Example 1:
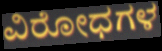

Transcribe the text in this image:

ವಿರೋಧಗಳ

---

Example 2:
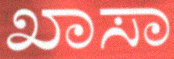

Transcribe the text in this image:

ಖಾಸಾ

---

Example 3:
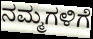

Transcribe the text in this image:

ನಮ್ಮಗಳಿಗೆ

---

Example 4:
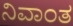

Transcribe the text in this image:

ನಿವಾಂತ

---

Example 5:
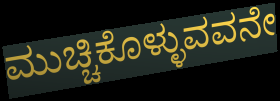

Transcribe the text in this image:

ಮುಚ್ಚಿಕೊಳ್ಳುವವನೇ